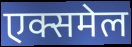
एक्समेल